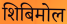
शिबिमोल